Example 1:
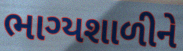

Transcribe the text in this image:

ભાગ્યશાળીને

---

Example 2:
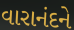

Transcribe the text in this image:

વારાનંદને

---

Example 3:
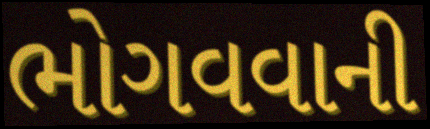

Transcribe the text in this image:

ભોગવવાની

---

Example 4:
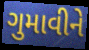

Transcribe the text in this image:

ગુમાવીને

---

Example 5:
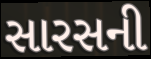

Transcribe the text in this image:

સારસની